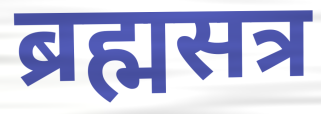
ब्रह्मसत्र